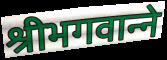
श्रीभगवान्ने